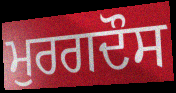
ਮੁਰਗਦੌਸ